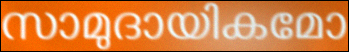
സാമുദായികമോ